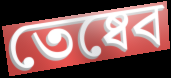
তেষ্বেব